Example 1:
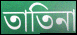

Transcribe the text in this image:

তাতিনা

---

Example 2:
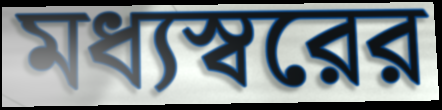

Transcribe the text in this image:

মধ্যস্বরের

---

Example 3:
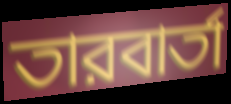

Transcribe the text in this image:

তারবার্তা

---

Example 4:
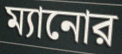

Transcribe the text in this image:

ম্যানোর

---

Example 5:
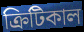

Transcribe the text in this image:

ক্রিটিকাল